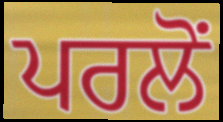
ਪਰਲੋਂ